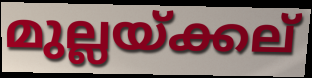
മുല്ലയ്ക്കല്